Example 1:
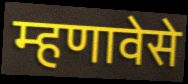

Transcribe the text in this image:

म्हणावेसे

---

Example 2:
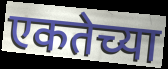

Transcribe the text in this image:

एकतेच्या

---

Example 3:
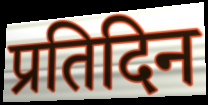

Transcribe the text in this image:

प्रतिदिन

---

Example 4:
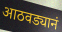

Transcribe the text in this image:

आठवड्यानं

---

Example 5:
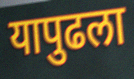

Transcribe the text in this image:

यापुढला